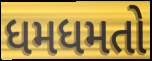
ધમધમતો